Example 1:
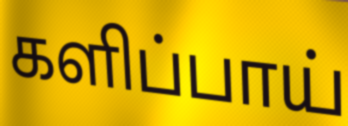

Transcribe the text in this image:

களிப்பாய்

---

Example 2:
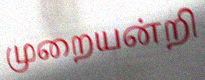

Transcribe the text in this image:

முறையன்றி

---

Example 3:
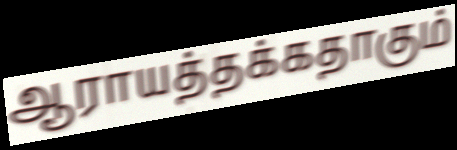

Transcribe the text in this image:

ஆராயத்தக்கதாகும்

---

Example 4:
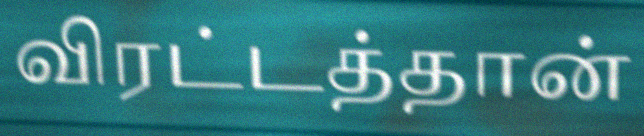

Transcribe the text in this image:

விரட்டத்தான்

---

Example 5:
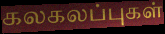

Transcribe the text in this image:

கலகலப்புகள்